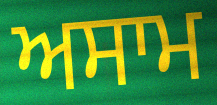
ਅਸਾਮ